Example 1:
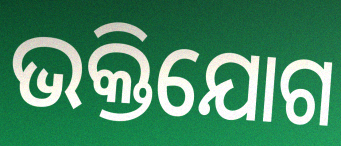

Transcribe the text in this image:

ଭକ୍ତିଯୋଗ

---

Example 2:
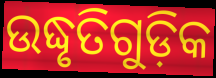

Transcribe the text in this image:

ଉଦ୍ଧୃତିଗୁଡ଼ିକ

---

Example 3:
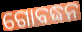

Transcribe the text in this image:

ଗୋବଦ୍ଧନ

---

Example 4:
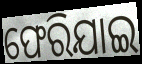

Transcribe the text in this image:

ଫେରିଯାଇ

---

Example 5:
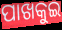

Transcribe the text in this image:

ପାଖକୁଇ